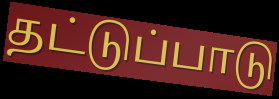
தட்டுப்பாடு